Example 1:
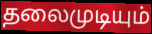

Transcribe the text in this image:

தலைமுடியும்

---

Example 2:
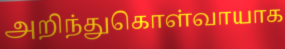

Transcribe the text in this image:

அறிந்துகொள்வாயாக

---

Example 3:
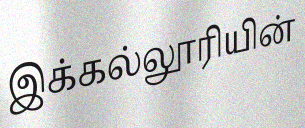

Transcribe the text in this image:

இக்கல்லூரியின்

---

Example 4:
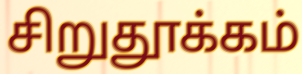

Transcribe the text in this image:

சிறுதூக்கம்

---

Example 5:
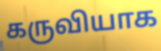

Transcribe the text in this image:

கருவியாக